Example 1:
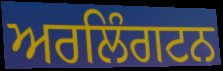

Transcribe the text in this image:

ਅਰਲਿੰਗਟਨ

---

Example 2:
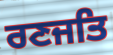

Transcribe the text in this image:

ਰਣਜਤਿ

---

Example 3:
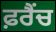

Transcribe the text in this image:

ਫ਼ਰੈਂਚ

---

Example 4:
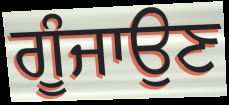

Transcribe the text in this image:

ਗੂੰਜਾਉਣ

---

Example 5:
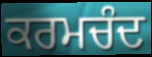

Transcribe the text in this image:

ਕਰਮਚੰਦ